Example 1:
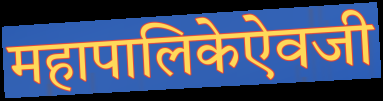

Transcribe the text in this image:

महापालिकेऐवजी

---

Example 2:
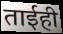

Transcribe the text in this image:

ताईही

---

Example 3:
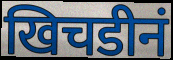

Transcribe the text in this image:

खिचडीनं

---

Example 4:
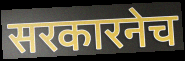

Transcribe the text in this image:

सरकारनेच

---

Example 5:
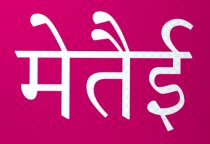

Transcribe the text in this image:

मेतैई